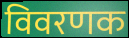
विवरणक